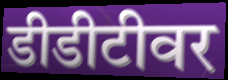
डीडीटीवर